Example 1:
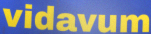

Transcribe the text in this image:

vidavum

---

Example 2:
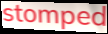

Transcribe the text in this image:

stomped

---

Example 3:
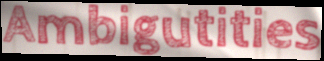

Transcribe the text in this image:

Ambigutities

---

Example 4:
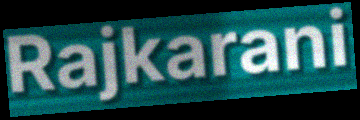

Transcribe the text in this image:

Rajkarani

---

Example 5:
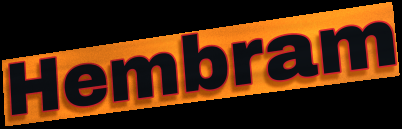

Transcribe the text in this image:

Hembram